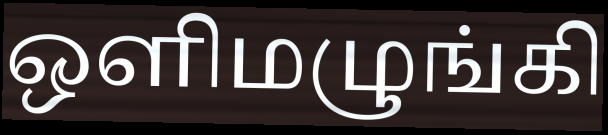
ஒளிமழுங்கி